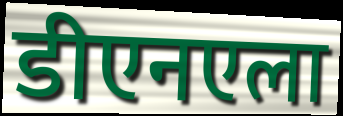
डीएनएला